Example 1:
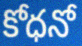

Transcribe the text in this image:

కోధనో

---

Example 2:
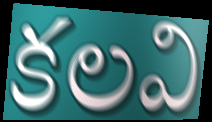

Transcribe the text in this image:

కలవి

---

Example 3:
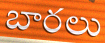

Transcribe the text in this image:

బారలు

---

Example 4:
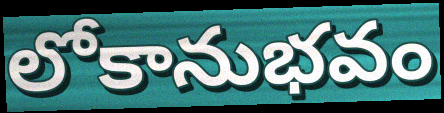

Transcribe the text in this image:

లోకానుభవం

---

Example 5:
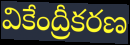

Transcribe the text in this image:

వికేంద్రీకరణ